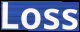
Loss